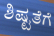
ಶಿಷ್ಟತೆಗೆ